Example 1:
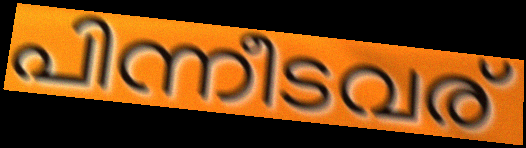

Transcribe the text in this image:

പിന്നീടവര്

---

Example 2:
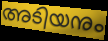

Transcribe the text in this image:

അടിയനും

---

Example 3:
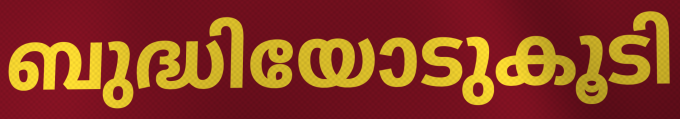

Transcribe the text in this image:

ബുദ്ധിയോടുകൂടി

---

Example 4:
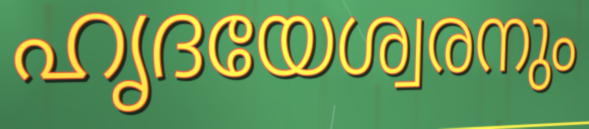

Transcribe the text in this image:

ഹൃദയേശ്വരനും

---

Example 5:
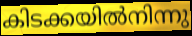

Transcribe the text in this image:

കിടക്കയിൽനിന്നു